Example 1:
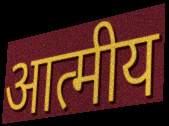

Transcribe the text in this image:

आत्मीय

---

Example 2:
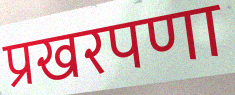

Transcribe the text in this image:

प्रखरपणा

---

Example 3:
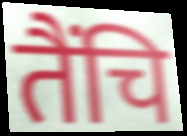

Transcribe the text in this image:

तैंचि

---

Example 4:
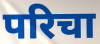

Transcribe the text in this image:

परिचा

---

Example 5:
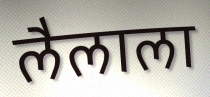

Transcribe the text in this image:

लैलाला